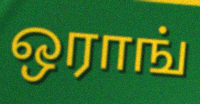
ஒராங்